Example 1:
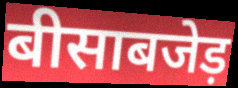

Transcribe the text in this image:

बीसाबजेड़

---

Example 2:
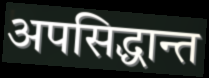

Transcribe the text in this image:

अपसिद्धान्त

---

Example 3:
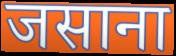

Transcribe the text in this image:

जसाना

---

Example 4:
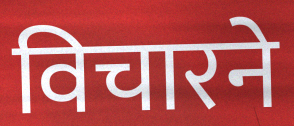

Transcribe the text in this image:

विचारने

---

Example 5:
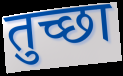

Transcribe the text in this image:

तुच्छा